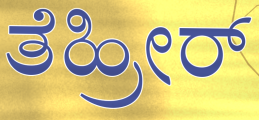
ತೆಹ್ರೀರ್